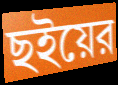
ছইয়ের